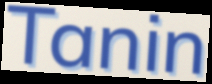
Tanin